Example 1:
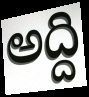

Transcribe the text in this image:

అద్ది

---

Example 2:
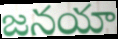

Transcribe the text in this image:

జనయా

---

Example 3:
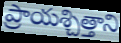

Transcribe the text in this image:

ప్రాయశ్చిత్తాని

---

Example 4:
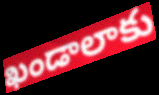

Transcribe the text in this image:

ఖండాలాకు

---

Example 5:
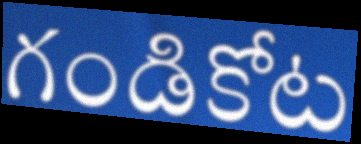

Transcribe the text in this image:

గండికోట